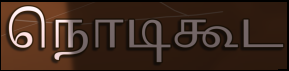
நொடிகூட